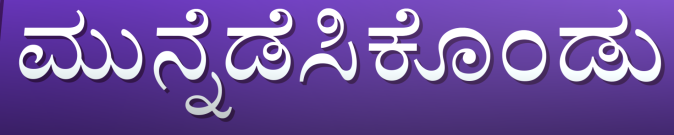
ಮುನ್ನೆಡೆಸಿಕೊಂಡು